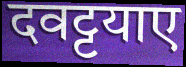
दवट्टयाए